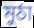
মুঠা